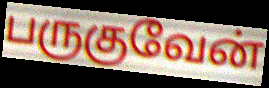
பருகுவேன்